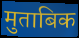
मुताबिक